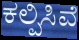
ಕಲ್ಪಿಸಿವೆ